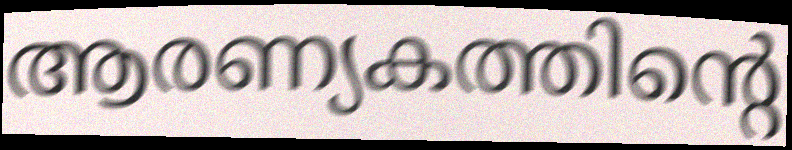
ആരണ്യകത്തിന്റെ